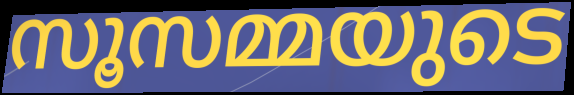
സൂസമ്മയുടെ